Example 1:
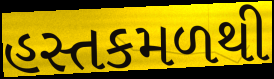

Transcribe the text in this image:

હસ્તકમળથી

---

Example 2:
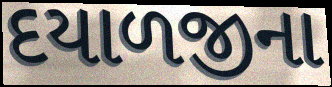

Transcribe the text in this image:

દયાળજીના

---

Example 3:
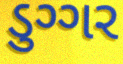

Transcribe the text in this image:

ડુગ્ગર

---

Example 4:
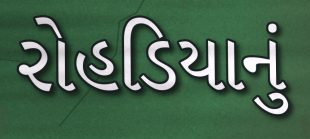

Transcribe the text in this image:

રોહડિયાનું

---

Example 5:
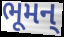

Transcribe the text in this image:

ભૂમન્